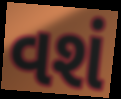
વશં